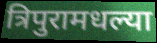
त्रिपुरामधल्या